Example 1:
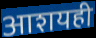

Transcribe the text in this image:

आशयही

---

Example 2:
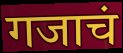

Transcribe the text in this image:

गजाचं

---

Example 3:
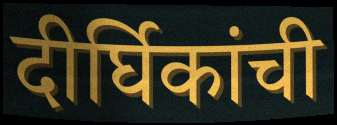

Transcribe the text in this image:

दीर्घिकांची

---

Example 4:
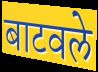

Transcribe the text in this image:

बाटवले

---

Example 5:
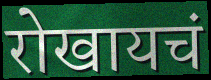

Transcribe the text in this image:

रोखायचं